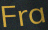
Fra